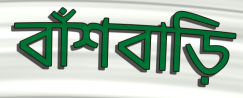
বাঁশবাড়ি